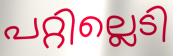
പറ്റില്ലെടി